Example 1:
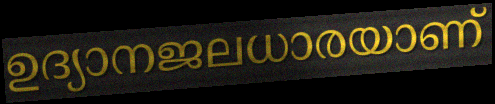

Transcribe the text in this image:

ഉദ്യാനജലധാരയാണ്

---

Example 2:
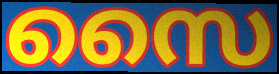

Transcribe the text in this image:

സൈ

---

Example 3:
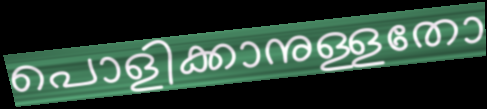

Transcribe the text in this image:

പൊളിക്കാനുള്ളതോ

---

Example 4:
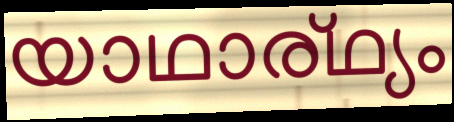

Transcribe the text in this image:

യാഥാര്ഥ്യം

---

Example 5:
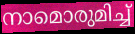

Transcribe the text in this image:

നാമൊരുമിച്ച്